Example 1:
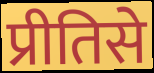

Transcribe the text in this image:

प्रीतिसे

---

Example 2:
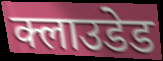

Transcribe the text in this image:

क्लाउडेड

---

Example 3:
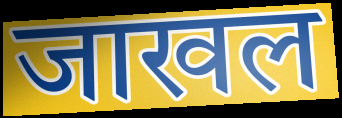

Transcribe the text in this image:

जाखल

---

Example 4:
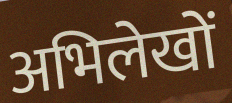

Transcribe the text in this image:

अभिलेखों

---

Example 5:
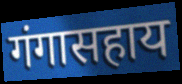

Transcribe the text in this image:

गंगासहाय